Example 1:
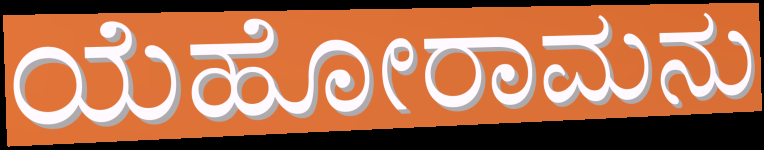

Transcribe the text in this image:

ಯೆಹೋರಾಮನು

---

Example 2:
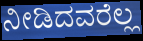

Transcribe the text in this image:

ನೀಡಿದವರೆಲ್ಲ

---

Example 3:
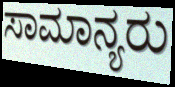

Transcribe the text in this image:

ಸಾಮಾನ್ಯರು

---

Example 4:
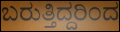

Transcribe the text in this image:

ಬರುತ್ತಿದ್ದರಿಂದ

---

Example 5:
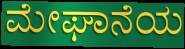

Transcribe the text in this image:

ಮೇಘಾನೆಯ